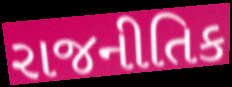
રાજનીતિક